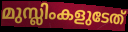
മുസ്ലിംകളുടേത്